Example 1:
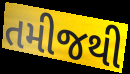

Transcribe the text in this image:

તમીજથી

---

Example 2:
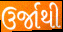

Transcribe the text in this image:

ઉર્જાથી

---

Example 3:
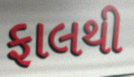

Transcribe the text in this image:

ફાલથી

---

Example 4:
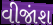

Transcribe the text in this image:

વીજાંશ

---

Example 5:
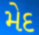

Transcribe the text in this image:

મેદ